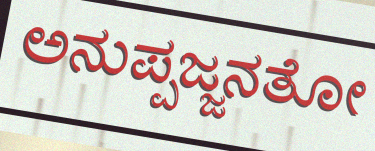
ಅನುಪ್ಪಜ್ಜನತೋ